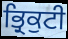
ਭ੍ਰਿਕੁਟੀ